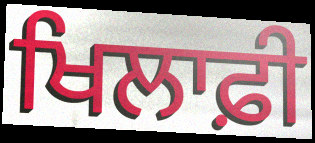
ਖਿਲਾਫ਼ੀ